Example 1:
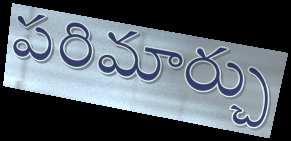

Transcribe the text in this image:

పరిమార్చు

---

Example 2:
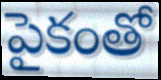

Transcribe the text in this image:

పైకంతో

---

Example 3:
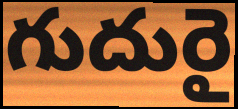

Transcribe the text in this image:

గుదురై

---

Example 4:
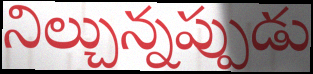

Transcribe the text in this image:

నిల్చున్నప్పుడు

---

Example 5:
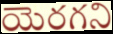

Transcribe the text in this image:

యెరగని